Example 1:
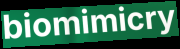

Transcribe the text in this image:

biomimicry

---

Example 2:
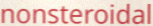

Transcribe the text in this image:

nonsteroidal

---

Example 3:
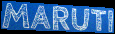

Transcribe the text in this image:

MARUTI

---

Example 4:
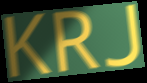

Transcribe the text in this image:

KRJ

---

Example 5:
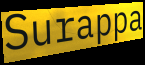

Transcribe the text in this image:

Surappa